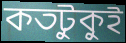
কতটুকুই